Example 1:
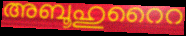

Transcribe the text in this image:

അബൂഹുറൈറ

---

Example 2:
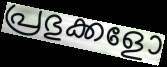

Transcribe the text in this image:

പ്രഭുക്കളോ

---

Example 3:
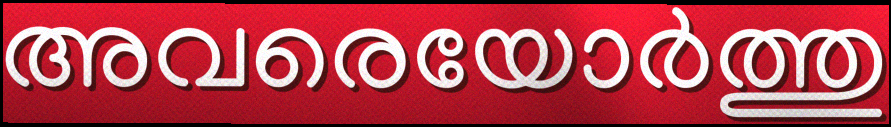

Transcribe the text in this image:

അവരെയോർത്തു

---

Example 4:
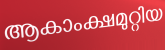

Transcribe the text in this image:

ആകാംക്ഷമുറ്റിയ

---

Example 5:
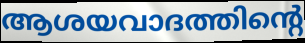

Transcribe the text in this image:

ആശയവാദത്തിന്റെ